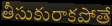
తీసుకురాకపోతే